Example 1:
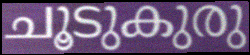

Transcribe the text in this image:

ചൂടുകുരു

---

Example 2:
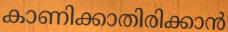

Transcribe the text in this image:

കാണിക്കാതിരിക്കാൻ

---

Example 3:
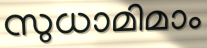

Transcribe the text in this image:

സുധാമിമാം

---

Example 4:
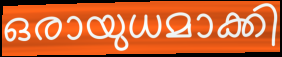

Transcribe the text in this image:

ഒരായുധമാക്കി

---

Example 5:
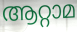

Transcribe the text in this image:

ആറ്റാമ